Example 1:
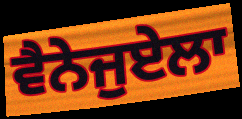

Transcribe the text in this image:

ਵੈਨੇਜੁਏਲਾ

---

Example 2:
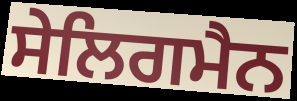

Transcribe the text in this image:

ਸੇਲਿਗਮੈਨ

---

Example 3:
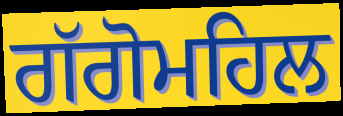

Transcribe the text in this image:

ਗੱਗੋਮਹਿਲ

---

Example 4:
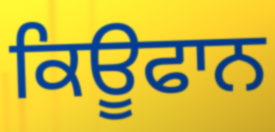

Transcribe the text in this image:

ਕਿਊਫਾਨ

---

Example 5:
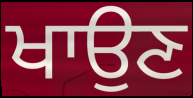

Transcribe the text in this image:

ਖਾਉਣ